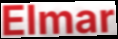
Elmar